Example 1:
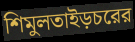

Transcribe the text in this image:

শিমুলতাইড়চরের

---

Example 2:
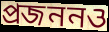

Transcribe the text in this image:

প্রজননও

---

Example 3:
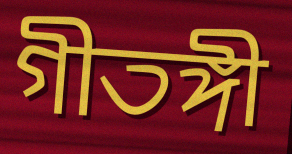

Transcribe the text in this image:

গীতঙ্গী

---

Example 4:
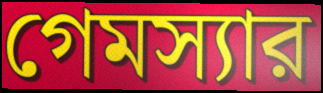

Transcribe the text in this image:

গেমস্যার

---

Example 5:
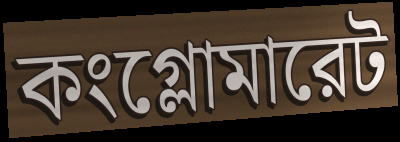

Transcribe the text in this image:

কংগ্লোমারেট